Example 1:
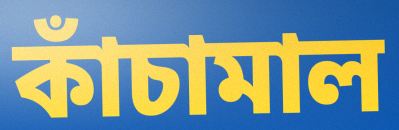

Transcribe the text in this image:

কাঁচামাল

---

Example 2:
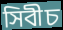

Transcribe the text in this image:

সিবীচ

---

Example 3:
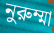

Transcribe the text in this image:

নুরুম্মা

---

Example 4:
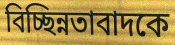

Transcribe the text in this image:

বিচ্ছিন্নতাবাদকে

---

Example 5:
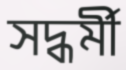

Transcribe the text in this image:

সদ্ধর্মী